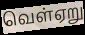
வெள்ஏறு